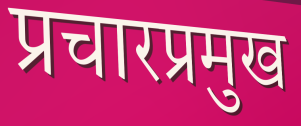
प्रचारप्रमुख